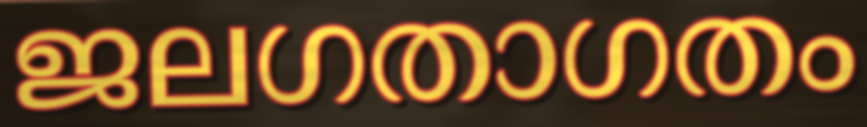
ജലഗതാഗതം